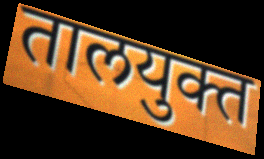
तालयुक्त